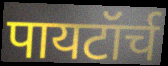
पायटॉर्च